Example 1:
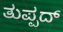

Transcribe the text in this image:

ತುಪ್ಪದ್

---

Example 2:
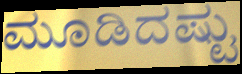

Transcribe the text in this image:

ಮೂಡಿದಷ್ಟು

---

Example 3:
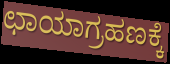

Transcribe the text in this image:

ಛಾಯಾಗ್ರಹಣಕ್ಕೆ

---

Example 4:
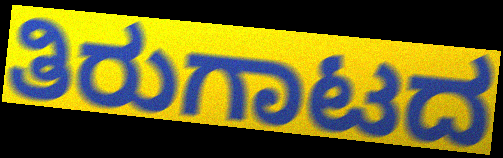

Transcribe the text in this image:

ತಿರುಗಾಟದ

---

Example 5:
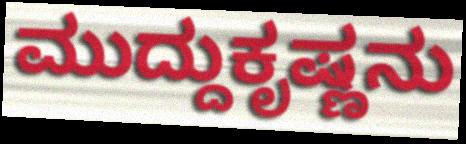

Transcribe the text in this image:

ಮುದ್ದುಕೃಷ್ಣನು